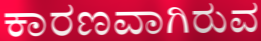
ಕಾರಣವಾಗಿರುವ